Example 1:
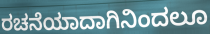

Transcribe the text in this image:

ರಚನೆಯಾದಾಗಿನಿಂದಲೂ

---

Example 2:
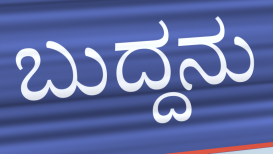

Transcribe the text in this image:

ಬುದ್ದನು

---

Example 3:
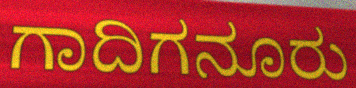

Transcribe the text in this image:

ಗಾದಿಗನೂರು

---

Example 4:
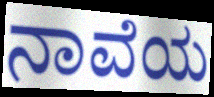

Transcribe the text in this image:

ನಾವೆಯ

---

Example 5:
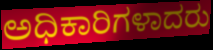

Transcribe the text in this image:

ಅಧಿಕಾರಿಗಳಾದರು